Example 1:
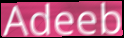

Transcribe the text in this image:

Adeeb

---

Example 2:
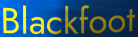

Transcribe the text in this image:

Blackfoot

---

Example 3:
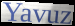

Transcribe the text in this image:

Yavuz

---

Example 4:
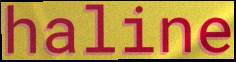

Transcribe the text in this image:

haline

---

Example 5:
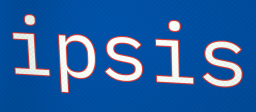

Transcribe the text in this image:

ipsis